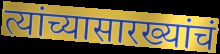
त्यांच्यासारख्यांचं